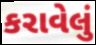
કરાવેલું